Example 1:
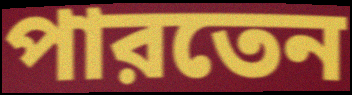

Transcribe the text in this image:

পারতেন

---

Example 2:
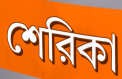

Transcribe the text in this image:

শেরিকা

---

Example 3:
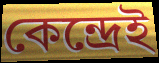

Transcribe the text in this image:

কেন্দ্রেই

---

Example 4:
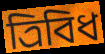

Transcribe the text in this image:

ত্রিবিধ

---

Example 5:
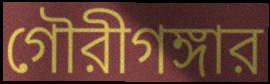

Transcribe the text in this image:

গৌরীগঙ্গার